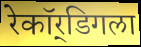
रेकॉर्डिगला